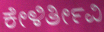
ಕೇಳಿರ್ತೀವಿ